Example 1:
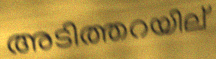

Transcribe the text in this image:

അടിത്തറയില്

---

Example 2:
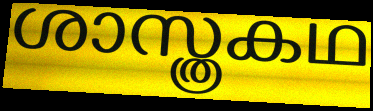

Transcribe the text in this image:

ശാസ്ത്രകഥ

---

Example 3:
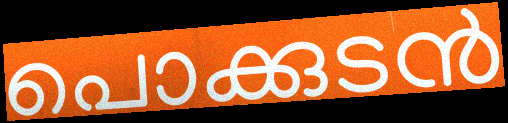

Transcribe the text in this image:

പൊക്കുടൻ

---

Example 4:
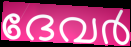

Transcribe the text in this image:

ദേവർ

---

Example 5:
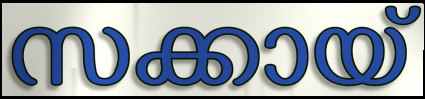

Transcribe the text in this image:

സക്കായ്